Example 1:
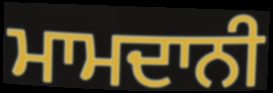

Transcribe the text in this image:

ਮਾਮਦਾਨੀ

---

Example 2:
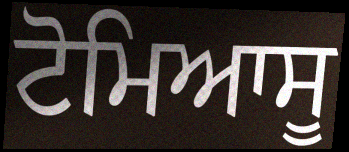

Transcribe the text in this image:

ਟੋਮਿਆਸੂ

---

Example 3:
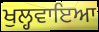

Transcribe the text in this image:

ਖੁਲ੍ਹਵਾਇਆ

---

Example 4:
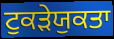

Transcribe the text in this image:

ਟੁਕੜੇਯੁਕਤਾ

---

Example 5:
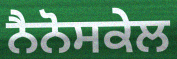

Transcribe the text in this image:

ਨੈਨੋਸਕੇਲ